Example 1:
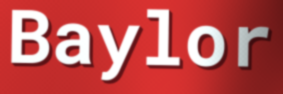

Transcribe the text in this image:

Baylor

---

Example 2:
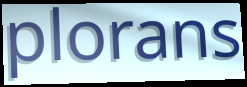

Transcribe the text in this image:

plorans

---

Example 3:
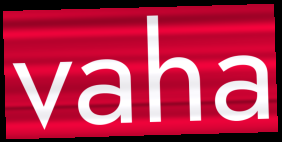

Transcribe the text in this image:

vaha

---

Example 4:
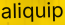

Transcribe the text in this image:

aliquip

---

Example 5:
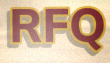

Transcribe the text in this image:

RFQ